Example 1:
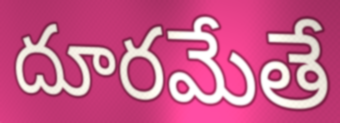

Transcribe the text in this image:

దూరమేతే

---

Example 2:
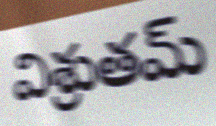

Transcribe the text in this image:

విశ్రుతమ్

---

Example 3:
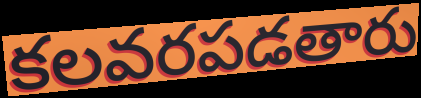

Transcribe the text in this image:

కలవరపడతారు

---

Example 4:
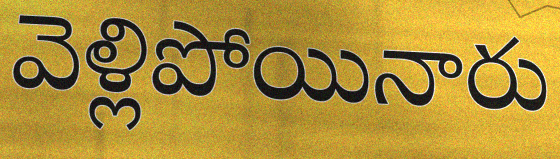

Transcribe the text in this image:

వెళ్లిపోయినారు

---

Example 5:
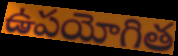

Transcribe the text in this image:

ఉపయోగిత